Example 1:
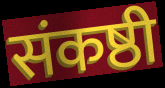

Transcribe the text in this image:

संकष्ठी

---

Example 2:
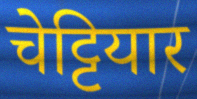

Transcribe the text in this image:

चेट्टियार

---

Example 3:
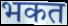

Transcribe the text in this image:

भकत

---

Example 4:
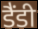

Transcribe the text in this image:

डैंडी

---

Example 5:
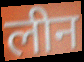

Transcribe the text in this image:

लीन